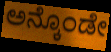
ಅನ್ಕೊಂಡೇ